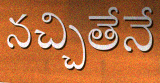
నచ్చితేనే